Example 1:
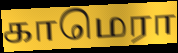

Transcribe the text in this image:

காமெரா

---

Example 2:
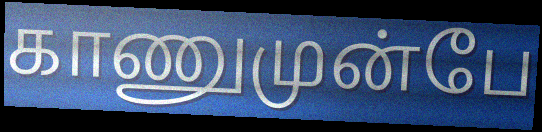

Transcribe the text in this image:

காணுமுன்பே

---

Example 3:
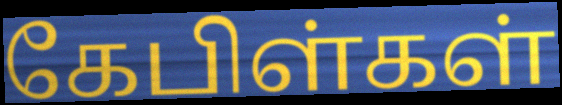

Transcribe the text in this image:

கேபிள்கள்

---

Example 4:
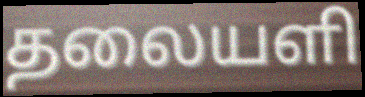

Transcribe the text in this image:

தலையளி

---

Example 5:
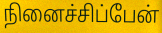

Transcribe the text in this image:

நினைச்சிப்பேன்